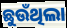
ଛୁଉଁଥିଲା